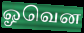
ஓவென